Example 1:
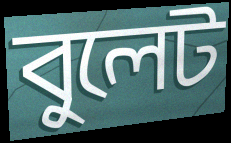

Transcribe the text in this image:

বুলেট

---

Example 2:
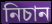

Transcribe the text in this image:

নিচান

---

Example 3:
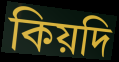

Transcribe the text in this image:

কিয়দি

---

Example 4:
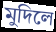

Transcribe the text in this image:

মুদিলে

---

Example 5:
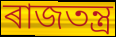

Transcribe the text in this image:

ৰাজতন্ত্ৰ